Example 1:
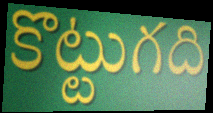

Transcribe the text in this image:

కొట్టుగది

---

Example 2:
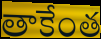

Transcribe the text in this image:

తాకేంత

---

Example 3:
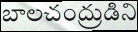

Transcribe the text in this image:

బాలచంద్రుడిని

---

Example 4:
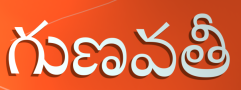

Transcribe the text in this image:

గుణవతీ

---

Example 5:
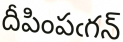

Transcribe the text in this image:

దీపింపఁగన్